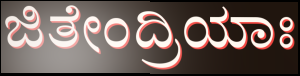
ಜಿತೇಂದ್ರಿಯಾಃ